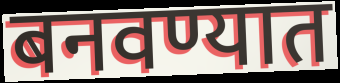
बनवण्यात